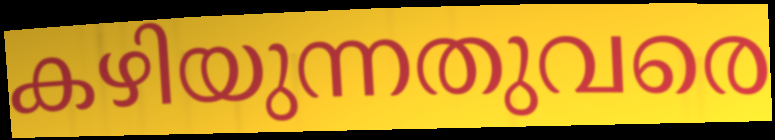
കഴിയുന്നതുവരെ